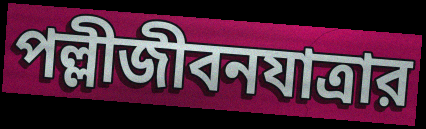
পল্লীজীবনযাত্রার